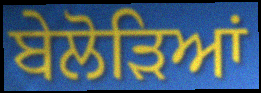
ਬੇਲੋੜਿਆਂ